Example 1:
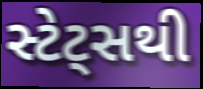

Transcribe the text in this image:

સ્ટેટ્સથી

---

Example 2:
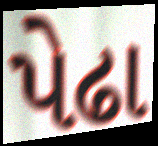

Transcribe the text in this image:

પેઢા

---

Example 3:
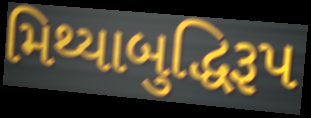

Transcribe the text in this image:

મિથ્યાબુદ્ધિરૂપ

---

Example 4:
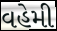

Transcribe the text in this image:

વહેમી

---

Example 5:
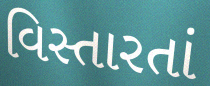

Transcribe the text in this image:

વિસ્તારતાં